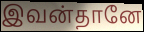
இவன்தானே